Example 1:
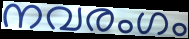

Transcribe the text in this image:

നവരംഗം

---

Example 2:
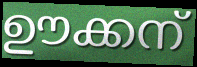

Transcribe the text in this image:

ഊക്കന്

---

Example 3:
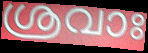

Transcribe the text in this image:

ശ്രവാഃ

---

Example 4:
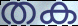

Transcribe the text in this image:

തക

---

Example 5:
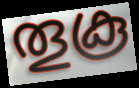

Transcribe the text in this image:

തൂകൂ